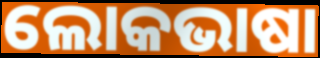
ଲୋକଭାଷା